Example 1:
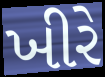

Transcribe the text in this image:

ખીરે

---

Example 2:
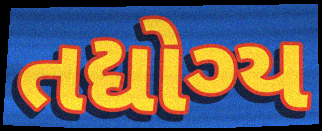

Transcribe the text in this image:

તદ્યોગ્ય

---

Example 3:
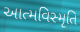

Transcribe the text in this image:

આત્મવિસ્મૃતિ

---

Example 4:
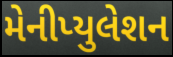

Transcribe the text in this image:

મેનીપ્યુલેશન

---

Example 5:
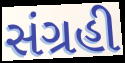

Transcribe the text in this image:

સંગ્રહી